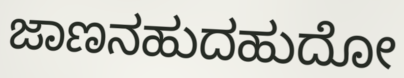
ಜಾಣನಹುದಹುದೋ